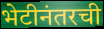
भेटीनंतरची